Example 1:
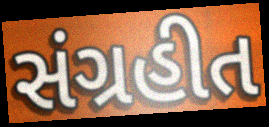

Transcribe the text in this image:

સંગ્રહીત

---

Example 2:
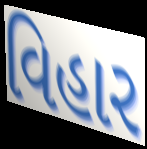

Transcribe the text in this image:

વિહાર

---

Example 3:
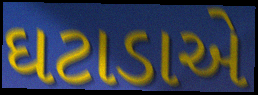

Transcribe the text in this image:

ઘટાડાએ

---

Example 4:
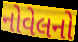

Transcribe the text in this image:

નોવેલનો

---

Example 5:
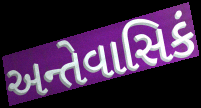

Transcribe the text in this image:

અન્તેવાસિકં